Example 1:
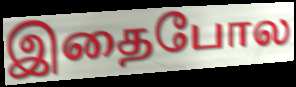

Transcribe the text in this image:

இதைபோல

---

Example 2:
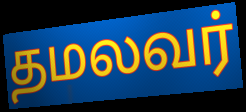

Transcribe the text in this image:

தமலவர்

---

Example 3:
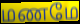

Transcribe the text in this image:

மணமே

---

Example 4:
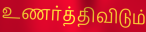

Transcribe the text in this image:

உணர்த்திவிடும்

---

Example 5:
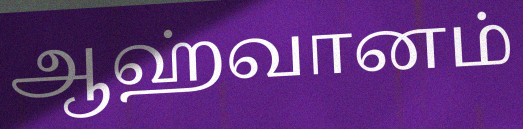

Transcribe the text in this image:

ஆஹ்வானம்